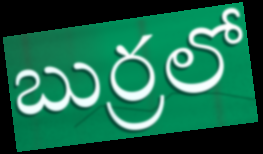
బుర్రలో